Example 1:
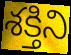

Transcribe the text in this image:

శక్తిని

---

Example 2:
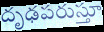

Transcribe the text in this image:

దృఢపరుస్తూ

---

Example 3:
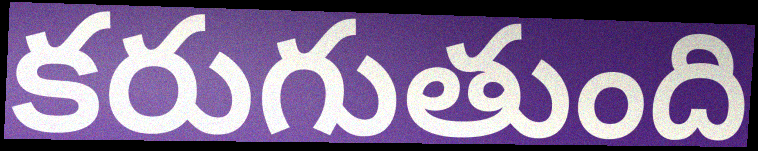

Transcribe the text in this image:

కరుగుతుంది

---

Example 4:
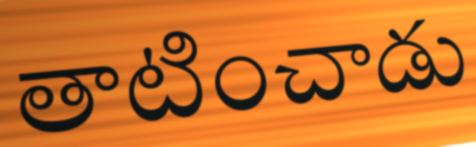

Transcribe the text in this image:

తాటించాడు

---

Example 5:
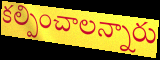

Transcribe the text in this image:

కల్పించాలన్నారు